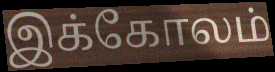
இக்கோலம்